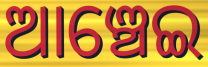
ଆଞ୍ଚେଇ